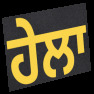
ਹੇਲਾ